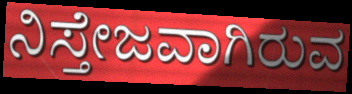
ನಿಸ್ತೇಜವಾಗಿರುವ